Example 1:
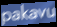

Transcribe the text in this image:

pakavu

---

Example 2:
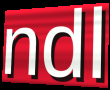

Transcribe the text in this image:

ndl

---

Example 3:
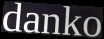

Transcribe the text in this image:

danko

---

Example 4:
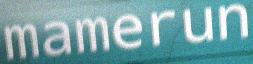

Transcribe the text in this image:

mamerun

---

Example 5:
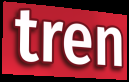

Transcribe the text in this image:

tren